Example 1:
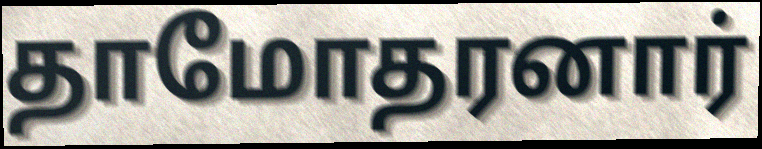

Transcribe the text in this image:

தாமோதரனார்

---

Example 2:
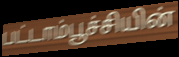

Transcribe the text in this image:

பட்டாம்பூச்சியின்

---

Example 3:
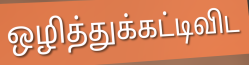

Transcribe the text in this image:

ஒழித்துக்கட்டிவிட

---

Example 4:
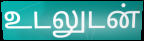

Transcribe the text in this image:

உடலுடன்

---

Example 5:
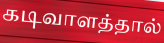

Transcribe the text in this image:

கடிவாளத்தால்